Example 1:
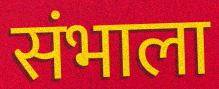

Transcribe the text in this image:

संभाला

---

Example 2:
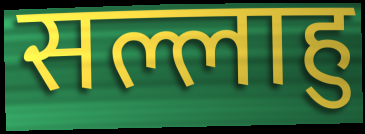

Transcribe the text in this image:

सल्लाहु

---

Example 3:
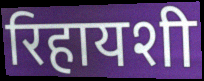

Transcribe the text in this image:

रिहायशी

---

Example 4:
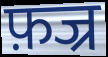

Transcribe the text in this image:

फ़ज्र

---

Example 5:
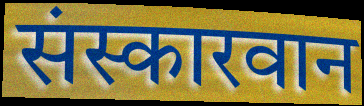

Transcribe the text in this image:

संस्कारवान